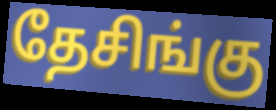
தேசிங்கு